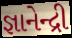
જ્ઞાનેન્દ્રી